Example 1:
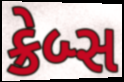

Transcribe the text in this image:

ક્રેબ્સ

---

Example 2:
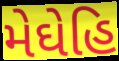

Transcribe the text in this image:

મેઘેહિ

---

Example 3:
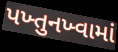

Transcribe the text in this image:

પખ્તુનખ્વામાં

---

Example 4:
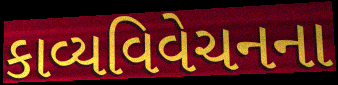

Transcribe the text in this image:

કાવ્યવિવેચનના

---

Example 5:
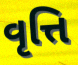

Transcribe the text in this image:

વૃત્તિ